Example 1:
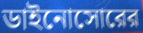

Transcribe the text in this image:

ডাইনোসোরের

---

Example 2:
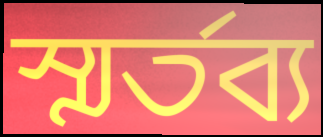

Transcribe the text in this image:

স্মর্তব্য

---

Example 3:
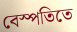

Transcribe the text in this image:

বেস্পতিতে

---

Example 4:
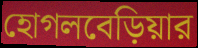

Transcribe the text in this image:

হোগলবেড়িয়ার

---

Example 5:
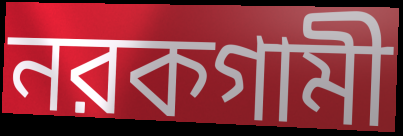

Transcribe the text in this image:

নরকগামী